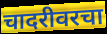
चादरीवरचा